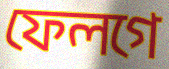
ফেলগে